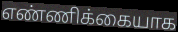
எண்ணிக்கையாக